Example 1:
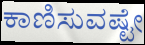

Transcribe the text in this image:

ಕಾಣಿಸುವಷ್ಟೇ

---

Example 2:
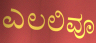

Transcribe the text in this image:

ಎಲಲಿವೂ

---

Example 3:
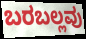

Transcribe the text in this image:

ಬರಬಲ್ಲವು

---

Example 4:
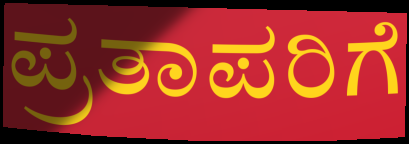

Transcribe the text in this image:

ಪ್ರತಾಪರಿಗೆ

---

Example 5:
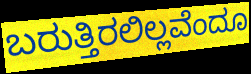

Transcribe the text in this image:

ಬರುತ್ತಿರಲಿಲ್ಲವೆಂದೂ